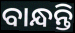
ବାନ୍ଧନ୍ତି